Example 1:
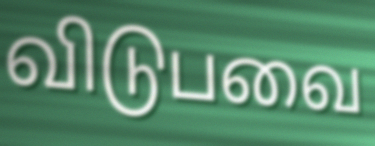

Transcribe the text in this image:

விடுபவை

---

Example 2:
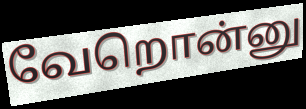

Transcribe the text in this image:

வேறொன்னு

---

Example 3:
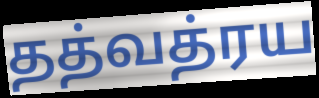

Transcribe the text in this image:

தத்வத்ரய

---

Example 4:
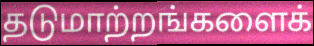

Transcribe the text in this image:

தடுமாற்றங்களைக்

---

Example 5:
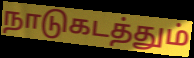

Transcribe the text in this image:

நாடுகடத்தும்